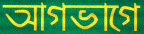
আগভাগে